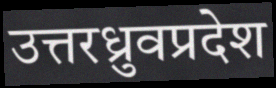
उत्तरध्रुवप्रदेश